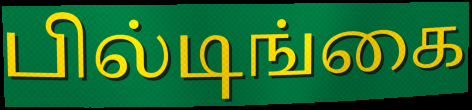
பில்டிங்கை